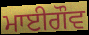
ਮਾਈਗੌਵ